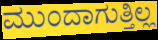
ಮುಂದಾಗುತ್ತಿಲ್ಲ